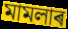
মামলাৰ